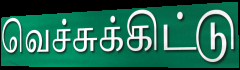
வெச்சுக்கிட்டு